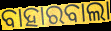
ବାହାରବାଲା